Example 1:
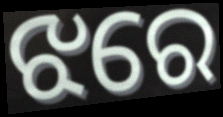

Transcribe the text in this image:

ଝରେ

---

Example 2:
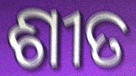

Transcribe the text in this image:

ଶୀତ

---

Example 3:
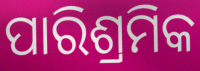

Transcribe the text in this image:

ପାରିଶ୍ରମିକ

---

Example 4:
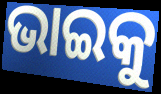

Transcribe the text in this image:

ଭାଇକୁ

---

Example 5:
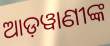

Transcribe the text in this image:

ଆଡ଼ୱାଣୀଙ୍କ